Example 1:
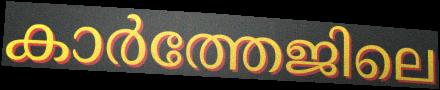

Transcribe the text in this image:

കാർത്തേജിലെ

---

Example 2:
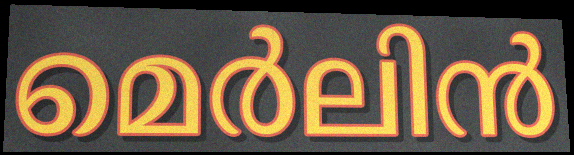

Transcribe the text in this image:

മെർലിൻ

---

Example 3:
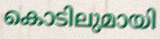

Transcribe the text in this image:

കൊടിലുമായി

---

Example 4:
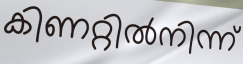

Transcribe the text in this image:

കിണറ്റിൽനിന്ന്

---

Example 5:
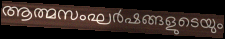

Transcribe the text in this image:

ആത്മസംഘർഷങ്ങളുടെയും